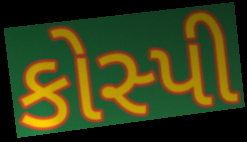
કોસ્પી